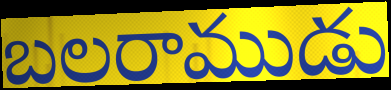
బలరాముడు